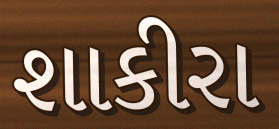
શાકીરા